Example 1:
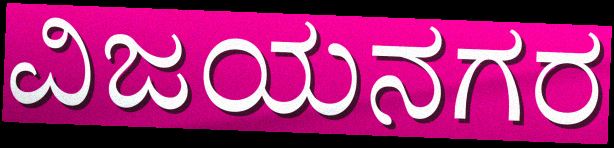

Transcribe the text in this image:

ವಿಜಯನಗರ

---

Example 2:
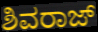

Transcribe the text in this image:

ಶಿವರಾಜ್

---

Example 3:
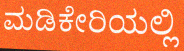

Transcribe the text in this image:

ಮಡಿಕೇರಿಯಲ್ಲಿ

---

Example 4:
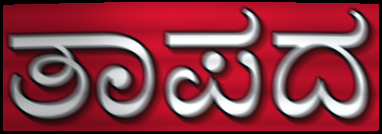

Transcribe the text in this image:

ತಾಪದ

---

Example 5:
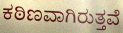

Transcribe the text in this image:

ಕಠಿಣವಾಗಿರುತ್ತವೆ